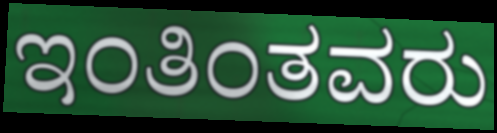
ಇಂತಿಂತವರು